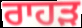
ਰਾਹੜ